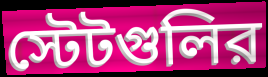
স্টেটগুলির